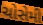
ચોસેમી